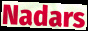
Nadars